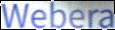
Webera